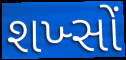
શખ્સોં